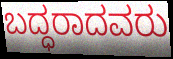
ಬದ್ಧರಾದವರು